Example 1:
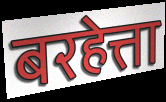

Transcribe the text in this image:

बरहेत्ता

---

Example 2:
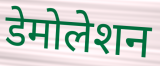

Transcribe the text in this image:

डेमोलेशन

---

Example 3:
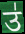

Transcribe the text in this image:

उ॑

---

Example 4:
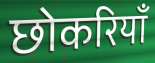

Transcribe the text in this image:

छोकरियाँ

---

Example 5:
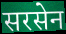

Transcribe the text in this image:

सरसेन